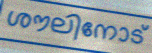
ശൗലിനോട്